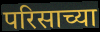
परिसाच्या